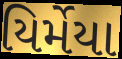
યિર્મેયા